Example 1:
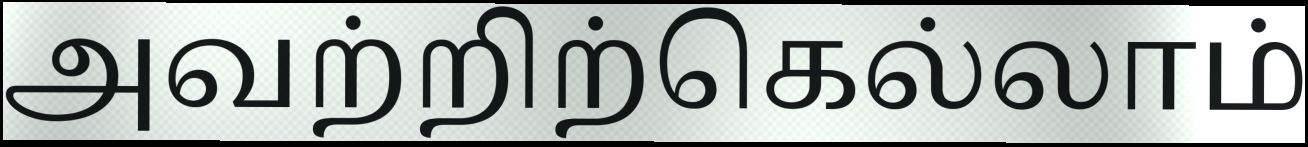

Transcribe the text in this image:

அவற்றிற்கெல்லாம்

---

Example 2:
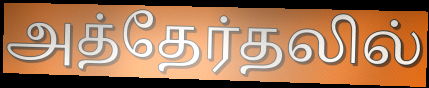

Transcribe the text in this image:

அத்தேர்தலில்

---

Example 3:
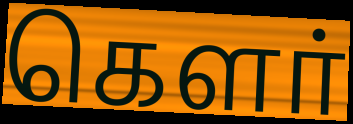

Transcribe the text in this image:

கௌர்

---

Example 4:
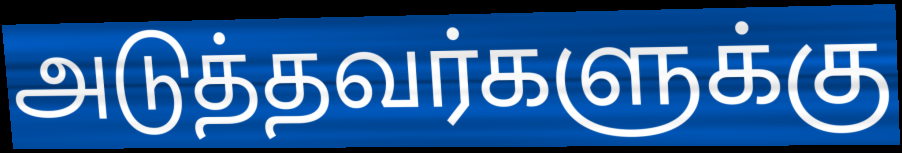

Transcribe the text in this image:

அடுத்தவர்களுக்கு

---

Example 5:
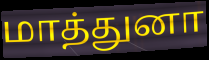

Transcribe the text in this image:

மாத்துனா